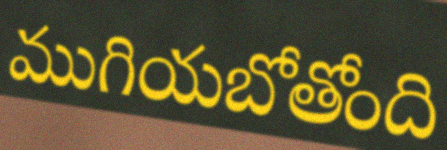
ముగియబోతోంది